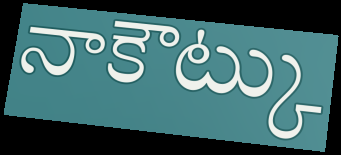
నాకౌట్కు